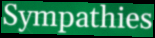
Sympathies